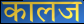
कालज